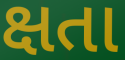
ક્ષતા